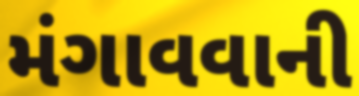
મંગાવવાની